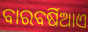
ବାରବର୍ଷିଆଏ